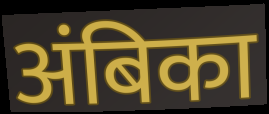
अंबिका